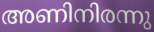
അണിനിരന്നു